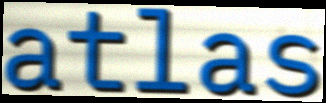
atlas